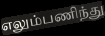
எலும்பணிந்து